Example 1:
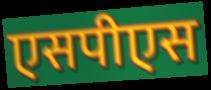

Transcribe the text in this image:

एसपीएस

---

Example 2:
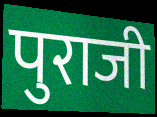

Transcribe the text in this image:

पुराजी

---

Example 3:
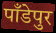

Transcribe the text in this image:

पाँडेपुर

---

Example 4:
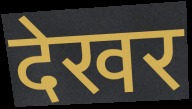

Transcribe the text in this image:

देखर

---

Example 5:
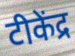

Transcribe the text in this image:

टीकेंद्र